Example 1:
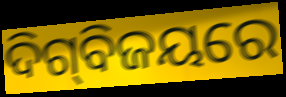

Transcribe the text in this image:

ଦିଗ୍‌ବିଜୟରେ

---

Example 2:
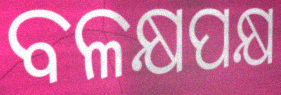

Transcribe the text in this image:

ବଳକ୍ଷପକ୍ଷ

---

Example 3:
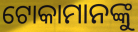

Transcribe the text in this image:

ଟୋକାମାନଙ୍କୁ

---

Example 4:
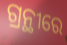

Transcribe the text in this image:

ଗ୍ରନ୍ଥୀରେ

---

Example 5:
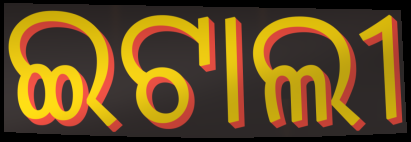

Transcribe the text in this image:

ଇଟାଲୀ